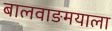
बालवाङमयाला